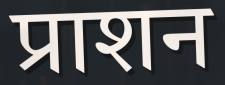
प्राशन